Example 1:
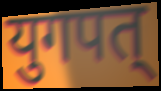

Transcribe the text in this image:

युगपत्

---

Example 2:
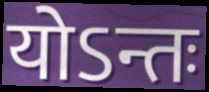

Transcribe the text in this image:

योऽन्तः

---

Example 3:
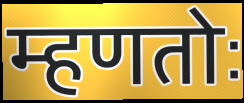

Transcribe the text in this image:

म्हणतोः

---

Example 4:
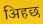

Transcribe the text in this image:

अिहछ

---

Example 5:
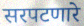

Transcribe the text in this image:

सरपटणारे